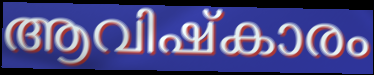
ആവിഷ്‌കാരം